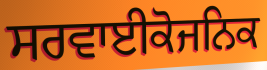
ਸਰਵਾਈਕੋਜਨਿਕ